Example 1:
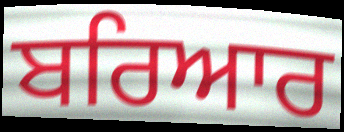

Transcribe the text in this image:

ਬਰਿਆਰ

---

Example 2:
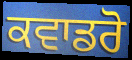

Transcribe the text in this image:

ਕਵਾਡਰੋ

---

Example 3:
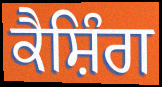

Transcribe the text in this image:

ਕੈਸ਼ਿੰਗ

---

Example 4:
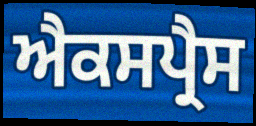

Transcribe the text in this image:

ਐਕਸਪ੍ਰੈਸ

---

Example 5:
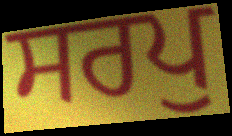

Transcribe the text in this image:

ਸਰਪੁ